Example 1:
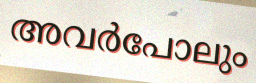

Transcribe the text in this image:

അവർപോലും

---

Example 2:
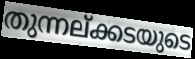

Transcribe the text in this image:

തുന്നല്ക്കടയുടെ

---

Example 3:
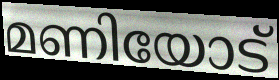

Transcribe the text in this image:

മണിയോട്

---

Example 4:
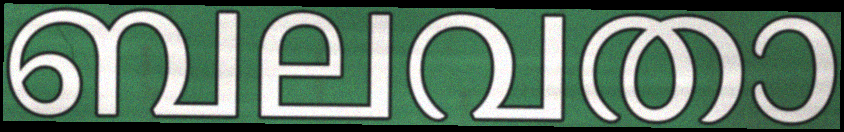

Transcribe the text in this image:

ബലവതാ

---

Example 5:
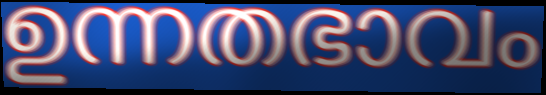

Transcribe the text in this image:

ഉന്നതഭാവം